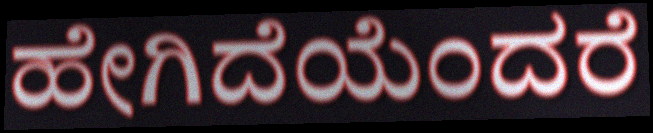
ಹೇಗಿದೆಯೆಂದರೆ